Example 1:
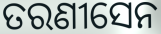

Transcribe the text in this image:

ତରଣୀସେନ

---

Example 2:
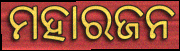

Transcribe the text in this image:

ମହାରଜନ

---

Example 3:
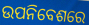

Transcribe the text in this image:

ଉପନିବେଶରେ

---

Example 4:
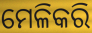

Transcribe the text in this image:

ମେଳିକରି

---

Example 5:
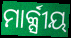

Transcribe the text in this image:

ମାର୍କ୍ସୀୟ